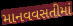
માનવવસતીમાં